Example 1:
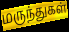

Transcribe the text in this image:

மருந்துகள்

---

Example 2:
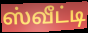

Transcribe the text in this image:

ஸ்வீட்டி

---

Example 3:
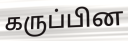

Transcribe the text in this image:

கருப்பின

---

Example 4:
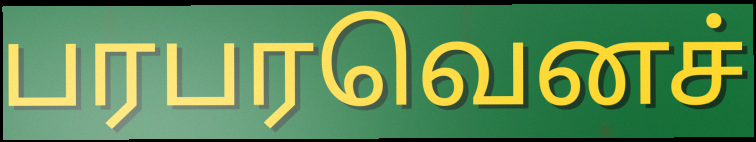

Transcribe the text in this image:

பரபரவெனச்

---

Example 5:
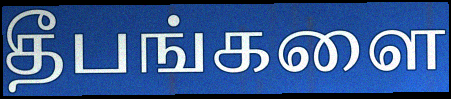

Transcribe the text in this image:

தீபங்களை